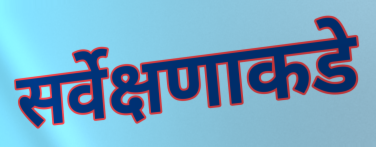
सर्वेक्षणाकडे